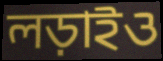
লড়াইও